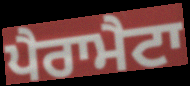
ਪੈਰਾਮੈਟਾ